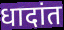
धादांत